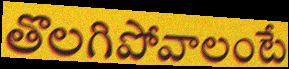
తొలగిపోవాలంటే